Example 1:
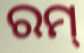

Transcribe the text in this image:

ରମ୍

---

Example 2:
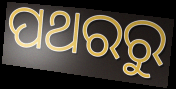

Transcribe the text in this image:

ପଥରରୁ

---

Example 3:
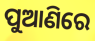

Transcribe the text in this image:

ପୁଆଣିରେ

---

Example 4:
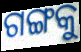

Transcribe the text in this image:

ଗଙ୍ଗକୁ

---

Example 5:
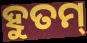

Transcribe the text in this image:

ହୁତମ୍